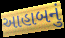
આહાબનું